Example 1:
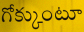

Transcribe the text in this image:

గోక్కుంటూ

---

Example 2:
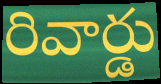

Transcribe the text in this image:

రివార్డు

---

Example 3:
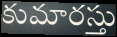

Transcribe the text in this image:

కుమారస్తు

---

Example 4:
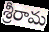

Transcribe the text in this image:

శ్రీరామ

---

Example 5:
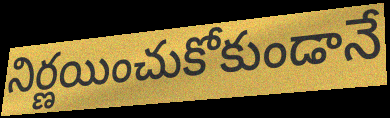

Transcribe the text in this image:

నిర్ణయించుకోకుండానే